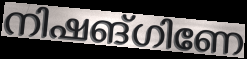
നിഷങ്ഗിണേ